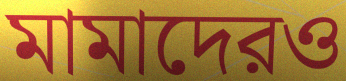
মামাদেরও